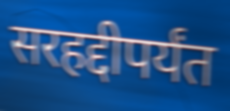
सरहद्दीपर्यंत